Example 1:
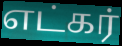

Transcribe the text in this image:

எட்கர்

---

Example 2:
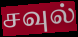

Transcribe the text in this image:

சவுல்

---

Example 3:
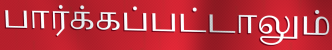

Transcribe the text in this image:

பார்க்கப்பட்டாலும்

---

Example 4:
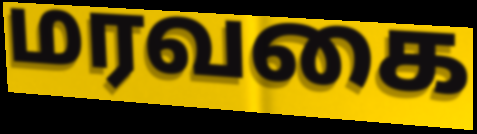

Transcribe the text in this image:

மரவகை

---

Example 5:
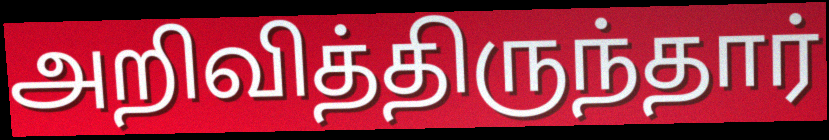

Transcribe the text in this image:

அறிவித்திருந்தார்